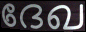
ദേഖ